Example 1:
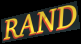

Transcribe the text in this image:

RAND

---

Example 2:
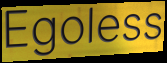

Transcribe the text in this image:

Egoless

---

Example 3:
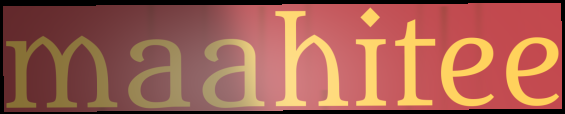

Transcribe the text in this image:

maahitee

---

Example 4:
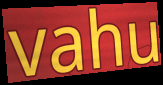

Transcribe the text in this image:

vahu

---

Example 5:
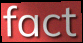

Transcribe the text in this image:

fact